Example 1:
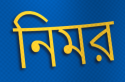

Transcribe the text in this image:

নিমর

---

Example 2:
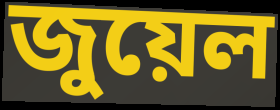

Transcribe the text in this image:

জুয়েল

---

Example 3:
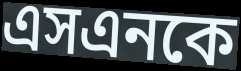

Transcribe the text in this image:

এসএনকে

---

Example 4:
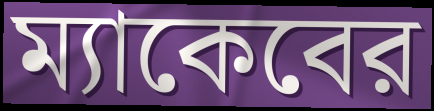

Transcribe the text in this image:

ম্যাকেবের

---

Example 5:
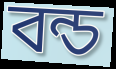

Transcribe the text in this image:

বন্ড